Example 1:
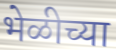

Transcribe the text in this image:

भेळीच्या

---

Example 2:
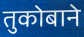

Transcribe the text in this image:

तुकोबाने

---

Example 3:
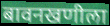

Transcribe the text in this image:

बावनखणीला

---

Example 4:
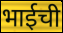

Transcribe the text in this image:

भाईची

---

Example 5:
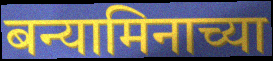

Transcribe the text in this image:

बन्यामिनाच्या